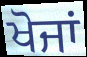
ਖੋਜਾਂ